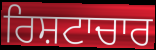
ਰਿਸ਼ਟਾਚਾਰ